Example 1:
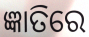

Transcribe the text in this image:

ଜ୍ଞାତିରେ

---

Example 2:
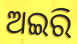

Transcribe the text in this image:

ଅଇରି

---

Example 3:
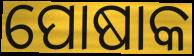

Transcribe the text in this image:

ପୋଷାକ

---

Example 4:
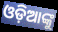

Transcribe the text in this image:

ଓଡ଼ିଆଙ୍କୁ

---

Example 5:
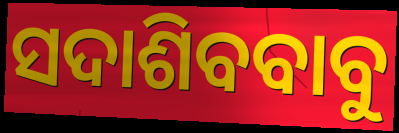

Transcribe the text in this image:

ସଦାଶିବବାବୁ